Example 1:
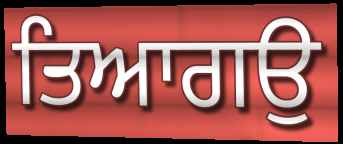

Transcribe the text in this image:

ਤਿਆਗਉ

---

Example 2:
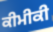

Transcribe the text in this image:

ਕੀਮੀਕੀ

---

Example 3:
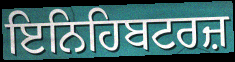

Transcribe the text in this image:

ਇਨਿਹਿਬਟਰਜ਼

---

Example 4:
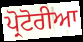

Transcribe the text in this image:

ਪ੍ਰੋਟੋਰੀਆ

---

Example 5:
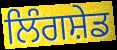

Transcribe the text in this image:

ਲਿੰਗਸ਼ੇਡ